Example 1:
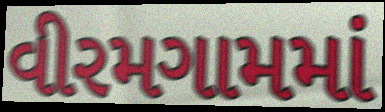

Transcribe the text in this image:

વીરમગામમાં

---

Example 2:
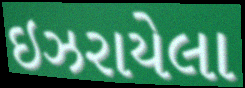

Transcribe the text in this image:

ઇઝરાયેલા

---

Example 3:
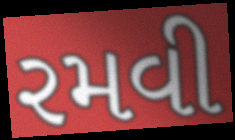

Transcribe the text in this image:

રમવી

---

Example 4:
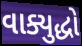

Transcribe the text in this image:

વાક્યુદ્ધો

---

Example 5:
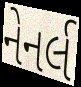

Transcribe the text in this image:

નેનર્લ